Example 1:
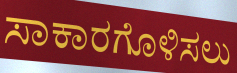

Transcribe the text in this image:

ಸಾಕಾರಗೊಳಿಸಲು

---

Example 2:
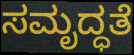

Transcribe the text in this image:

ಸಮೃದ್ಧತೆ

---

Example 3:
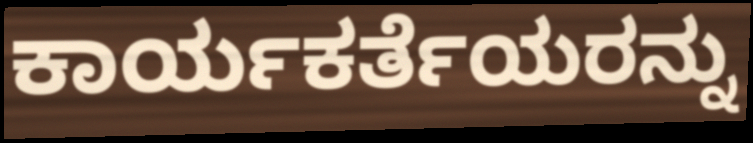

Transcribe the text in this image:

ಕಾರ್ಯಕರ್ತೆಯರನ್ನು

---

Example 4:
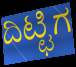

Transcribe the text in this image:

ದಿಟ್ಟಿಗ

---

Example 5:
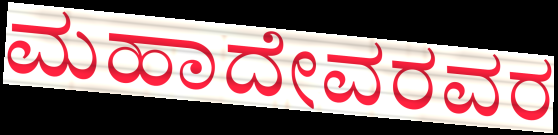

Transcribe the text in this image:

ಮಹಾದೇವರವರ